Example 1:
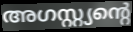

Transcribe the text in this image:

അഗസ്റ്റ്യന്റെ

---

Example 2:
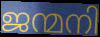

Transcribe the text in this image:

ജന്മനി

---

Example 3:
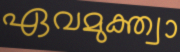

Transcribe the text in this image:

ഏവമുക്ത്വാ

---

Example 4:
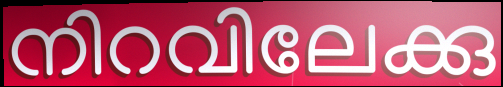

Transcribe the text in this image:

നിറവിലേക്കു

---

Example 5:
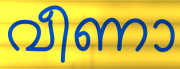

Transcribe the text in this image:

വീണാ